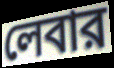
লেবার